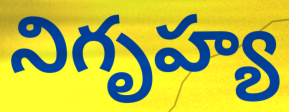
నిగృహ్య